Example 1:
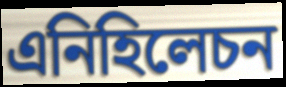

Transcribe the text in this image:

এনিহিলেচন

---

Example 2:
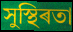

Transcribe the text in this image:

সুস্থিৰতা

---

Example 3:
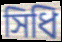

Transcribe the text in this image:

সিধি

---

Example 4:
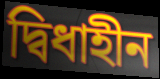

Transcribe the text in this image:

দ্বিধাহীন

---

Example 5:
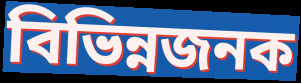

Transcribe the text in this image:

বিভিন্নজনক